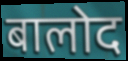
बालोद